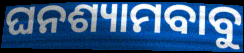
ଘନଶ୍ୟାମବାବୁ